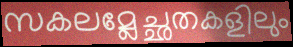
സകലമ്ലേച്ഛതകളിലും